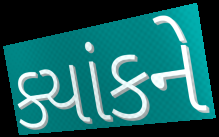
ક્યાંકને